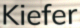
Kiefer